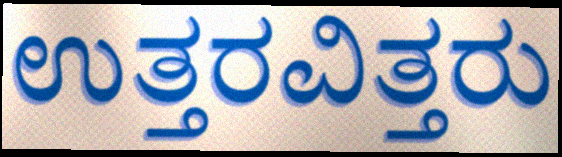
ಉತ್ತರವಿತ್ತರು